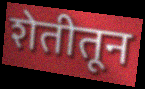
शेतीतून